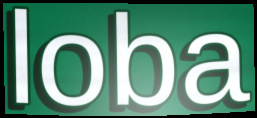
loba